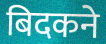
बिदकने